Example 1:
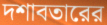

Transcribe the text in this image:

দশাবতারের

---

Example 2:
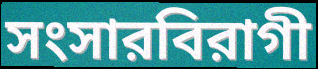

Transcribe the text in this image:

সংসারবিরাগী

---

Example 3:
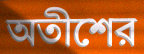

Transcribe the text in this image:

অতীশের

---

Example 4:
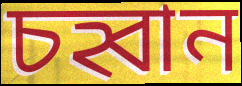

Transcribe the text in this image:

চহ্বান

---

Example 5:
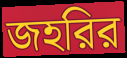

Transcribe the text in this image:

জহরির